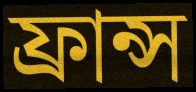
ফ্রান্স